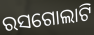
ରସଗୋଲାଟି